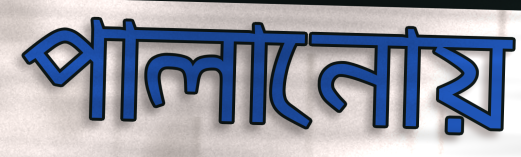
পালানোয়